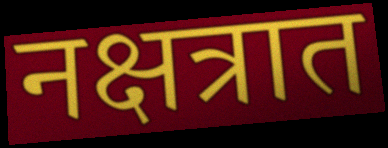
नक्षत्रात